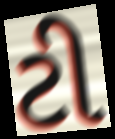
ટી